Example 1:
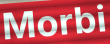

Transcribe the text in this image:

Morbi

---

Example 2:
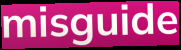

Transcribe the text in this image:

misguide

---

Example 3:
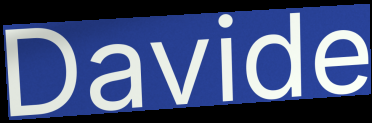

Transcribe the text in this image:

Davide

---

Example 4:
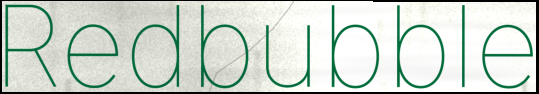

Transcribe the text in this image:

Redbubble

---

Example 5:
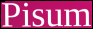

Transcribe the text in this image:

Pisum